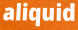
aliquid